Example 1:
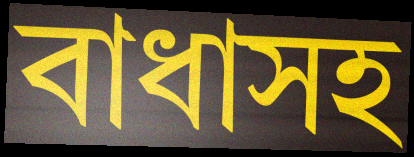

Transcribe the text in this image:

বাধাসহ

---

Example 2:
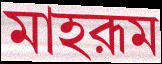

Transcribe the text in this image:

মাহরূম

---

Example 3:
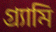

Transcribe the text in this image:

গ্র্যামি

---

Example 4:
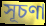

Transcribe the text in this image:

সূচণা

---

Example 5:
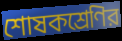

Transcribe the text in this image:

শোষকশ্রেণির